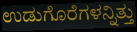
ಉಡುಗೊರೆಗಳನ್ನಿತ್ತು